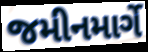
જમીનમાર્ગે